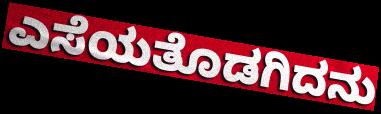
ಎಸೆಯತೊಡಗಿದನು